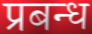
प्रबन्ध